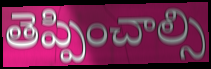
తెప్పించాల్సి